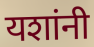
यशांनी